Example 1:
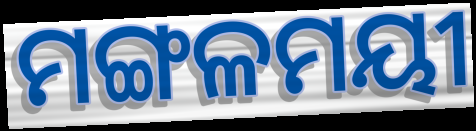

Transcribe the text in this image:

ମଙ୍ଗଳମୟୀ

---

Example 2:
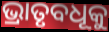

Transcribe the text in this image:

ଭ୍ରାତୃବଧୂକୁ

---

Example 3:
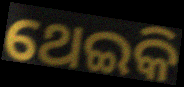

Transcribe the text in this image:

ଥେଇକି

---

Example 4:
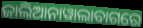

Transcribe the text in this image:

ଜାଲିଆନାୱାଲାବାଗରେ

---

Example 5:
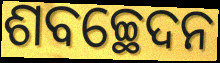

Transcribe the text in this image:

ଶବଚ୍ଛେଦନ